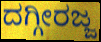
ದಗ್ಗೀರಜ್ಜ